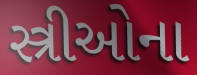
સ્ત્રીઓના